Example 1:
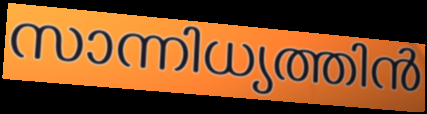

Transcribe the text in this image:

സാന്നിധ്യത്തിൻ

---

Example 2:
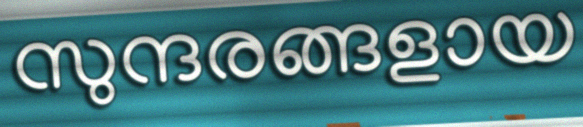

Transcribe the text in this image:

സുന്ദരങ്ങളായ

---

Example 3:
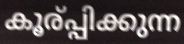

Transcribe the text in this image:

കൂര്പ്പിക്കുന്ന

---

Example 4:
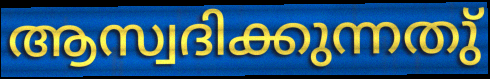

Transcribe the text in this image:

ആസ്വദിക്കുന്നതു്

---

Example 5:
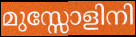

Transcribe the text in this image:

മുസ്സോളിനി